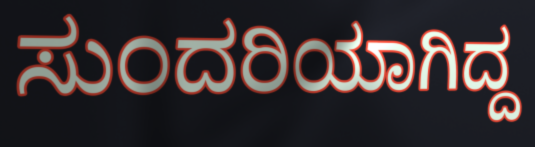
ಸುಂದರಿಯಾಗಿದ್ದ